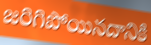
జరిగిపోయినదానికి